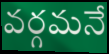
వర్గమనే